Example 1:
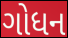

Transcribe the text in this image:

ગોધન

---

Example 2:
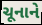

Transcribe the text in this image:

ચૂનાને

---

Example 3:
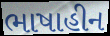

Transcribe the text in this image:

ભાષાહીન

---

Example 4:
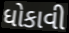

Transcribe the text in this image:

ધોકાવી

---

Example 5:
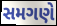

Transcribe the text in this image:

સમગણે